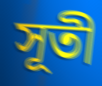
সূতী